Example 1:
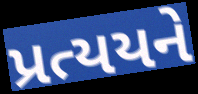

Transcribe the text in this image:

પ્રત્યયને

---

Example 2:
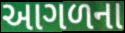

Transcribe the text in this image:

આગળના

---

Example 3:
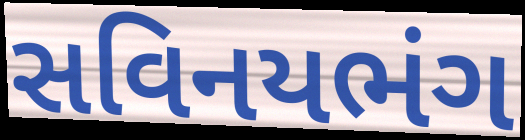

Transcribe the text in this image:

સવિનયભંગ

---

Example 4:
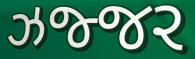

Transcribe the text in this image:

ઝજ્જર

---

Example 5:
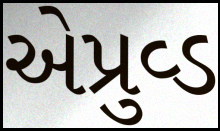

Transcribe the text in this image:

એપ્રુવ્ડ